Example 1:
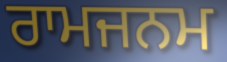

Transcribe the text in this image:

ਰਾਮਜਨਮ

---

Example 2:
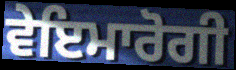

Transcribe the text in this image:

ਵੇਇਮਾਰੋਗੀ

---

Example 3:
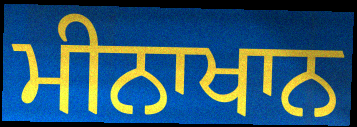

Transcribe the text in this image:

ਮੀਨਾਖਾਨ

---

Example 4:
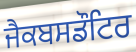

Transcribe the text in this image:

ਜੈਕਬਸਡੌਟਿਰ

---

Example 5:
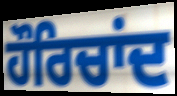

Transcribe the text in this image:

ਹੌਰਿਚਾਂਦ